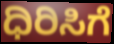
ಧಿರಿಸಿಗೆ